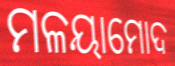
ମଳୟାମୋଦ